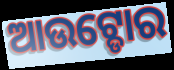
ଆଉଟ୍ଡୋର